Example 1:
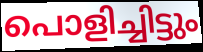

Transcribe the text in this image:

പൊളിച്ചിട്ടും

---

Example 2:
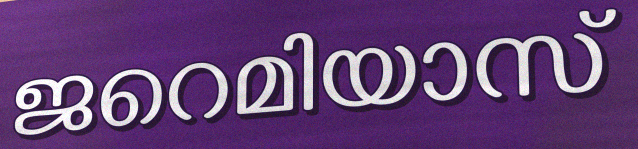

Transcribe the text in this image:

ജറെമിയാസ്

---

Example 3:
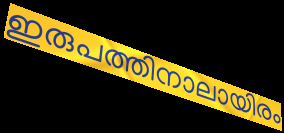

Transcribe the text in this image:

ഇരുപത്തിനാലായിരം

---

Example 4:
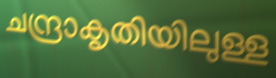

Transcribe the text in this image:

ചന്ദ്രാകൃതിയിലുള്ള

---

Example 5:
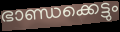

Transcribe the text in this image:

ഭാണ്ഡക്കെട്ടും